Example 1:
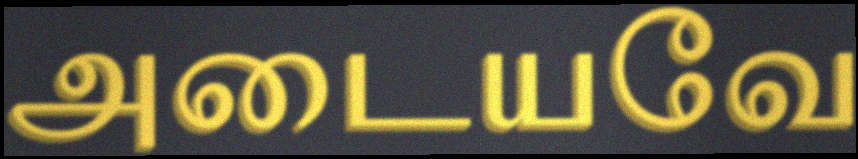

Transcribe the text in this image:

அடையவே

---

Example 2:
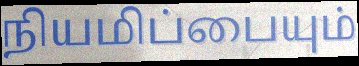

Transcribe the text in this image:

நியமிப்பையும்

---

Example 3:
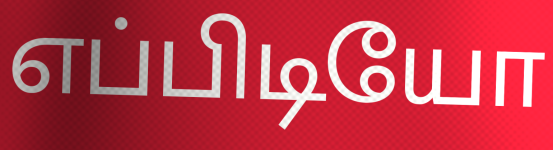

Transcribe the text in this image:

எப்பிடியோ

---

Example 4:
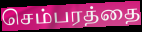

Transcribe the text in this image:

செம்பரத்தை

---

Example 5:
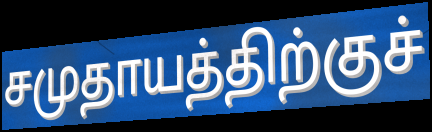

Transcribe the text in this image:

சமுதாயத்திற்குச்